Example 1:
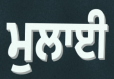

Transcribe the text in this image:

ਮੁਲਾਈ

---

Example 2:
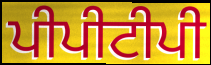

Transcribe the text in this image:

ਪੀਪੀਟੀਪੀ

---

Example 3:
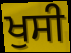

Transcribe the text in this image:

ਖੁਸੀ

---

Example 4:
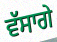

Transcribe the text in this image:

ਵੱਸਾਗੇ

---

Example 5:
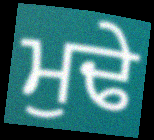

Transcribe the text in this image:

ਮੁਢੇ